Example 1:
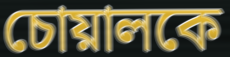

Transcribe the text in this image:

চোয়ালকে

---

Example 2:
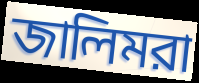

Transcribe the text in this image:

জালিমরা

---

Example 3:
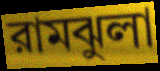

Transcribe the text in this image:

রামঝুলা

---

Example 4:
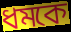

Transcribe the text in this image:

ধমকে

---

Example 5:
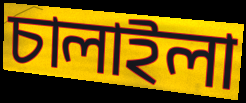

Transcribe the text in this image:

চালাইলা